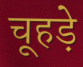
चूहड़े